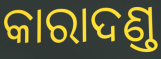
କାରାଦଣ୍ଡ